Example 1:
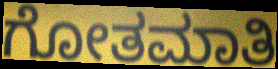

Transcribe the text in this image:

ಗೋತಮಾತಿ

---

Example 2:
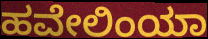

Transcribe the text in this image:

ಹವೇಲಿಂಯಾ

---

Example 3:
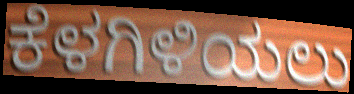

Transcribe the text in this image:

ಕೆಳಗಿಳಿಯಲು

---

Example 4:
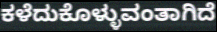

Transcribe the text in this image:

ಕಳೆದುಕೊಳ್ಳುವಂತಾಗಿದೆ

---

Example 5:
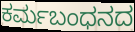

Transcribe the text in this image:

ಕರ್ಮಬಂಧನದ